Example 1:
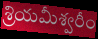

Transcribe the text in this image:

శ్రియమీశ్వరీం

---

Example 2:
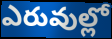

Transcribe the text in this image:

ఎరువుల్లో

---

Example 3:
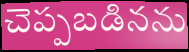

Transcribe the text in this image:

చెప్పబడినను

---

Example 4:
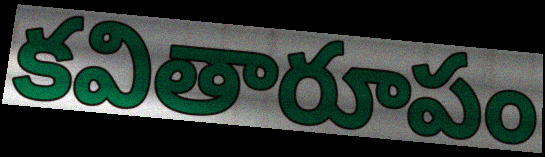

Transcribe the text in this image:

కవితారూపం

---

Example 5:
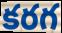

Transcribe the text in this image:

కరగ